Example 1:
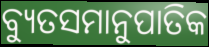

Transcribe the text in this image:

ବ୍ୟୁତସମାନୁପାତିକ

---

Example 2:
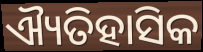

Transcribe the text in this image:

ଐ୍ୟତିହାସିକ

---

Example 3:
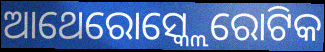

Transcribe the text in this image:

ଆଥେରୋସ୍କ୍ଲେରୋଟିକ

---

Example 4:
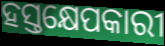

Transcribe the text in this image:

ହସ୍ତକ୍ଷେପକାରୀ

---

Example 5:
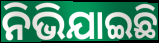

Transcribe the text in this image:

ନିଭିଯାଇଛି